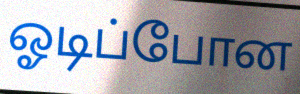
ஓடிப்போன